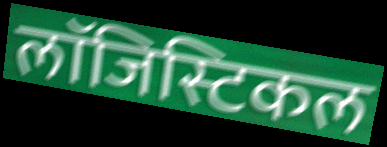
लॉजिस्टिकल